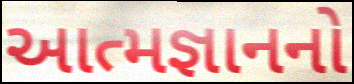
આત્મજ્ઞાનનો